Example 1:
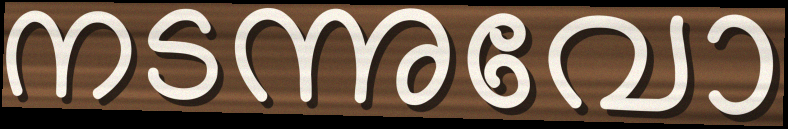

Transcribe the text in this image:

നടന്നുവോ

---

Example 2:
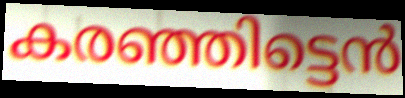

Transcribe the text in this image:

കരഞ്ഞിട്ടെൻ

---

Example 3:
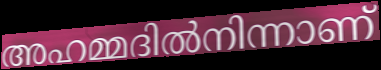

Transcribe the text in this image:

അഹമ്മദിൽനിന്നാണ്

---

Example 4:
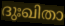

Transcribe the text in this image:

ദുഃഖിതാ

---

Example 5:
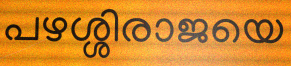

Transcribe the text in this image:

പഴശ്ശിരാജയെ